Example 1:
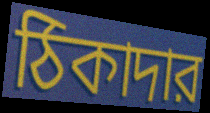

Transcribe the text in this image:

ঠিকাদার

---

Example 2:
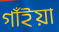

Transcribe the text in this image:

গাঁইয়া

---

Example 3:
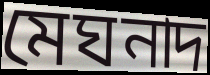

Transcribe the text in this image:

মেঘনাদ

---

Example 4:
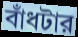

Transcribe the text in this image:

বাঁধটার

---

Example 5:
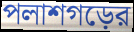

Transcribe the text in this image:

পলাশগড়ের